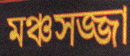
মঞ্চসজ্জা